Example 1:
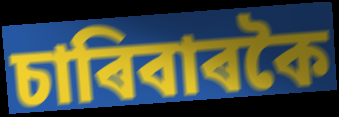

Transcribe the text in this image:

চাৰিবাৰকৈ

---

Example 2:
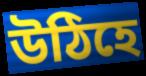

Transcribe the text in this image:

উঠিহে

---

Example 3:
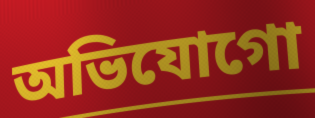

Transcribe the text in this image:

অভিযোগো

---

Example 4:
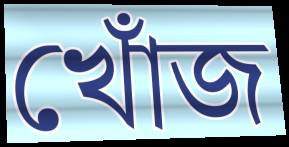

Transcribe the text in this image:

খোঁজ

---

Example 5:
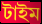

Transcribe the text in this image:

টাইম